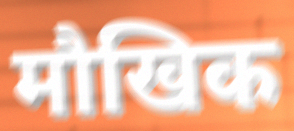
मौखिक